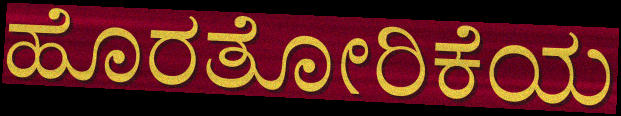
ಹೊರತೋರಿಕೆಯ